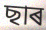
ছাৰ